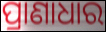
ପ୍ରାଣାଧାର